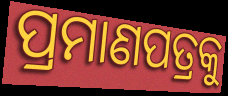
ପ୍ରମାଣପତ୍ରକୁ